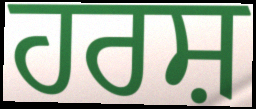
ਹਰਸ਼